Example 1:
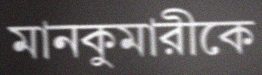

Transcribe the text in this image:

মানকুমারীকে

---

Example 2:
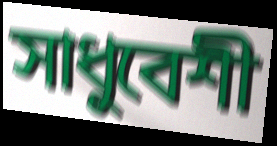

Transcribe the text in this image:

সাধুবেশী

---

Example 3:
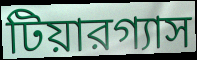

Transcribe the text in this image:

টিয়ারগ্যাস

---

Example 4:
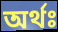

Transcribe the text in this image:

অর্থঃ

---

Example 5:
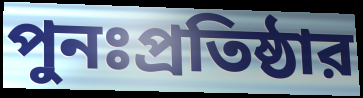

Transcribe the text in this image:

পুনঃপ্রতিষ্ঠার